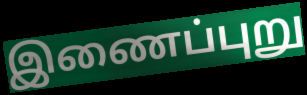
இணைப்புறு